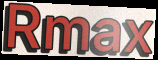
Rmax